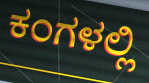
ಕಂಗಳಲ್ಲಿ